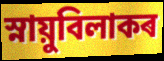
স্নায়ুবিলাকৰ